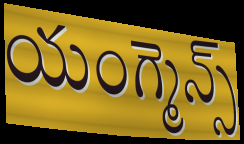
యంగ్మెన్స్